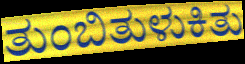
ತುಂಬಿತುಳುಕಿತು